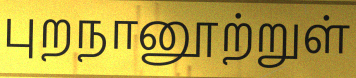
புறநானூற்றுள்